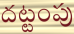
దట్టంపు